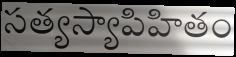
సత్యస్యాపిహితం